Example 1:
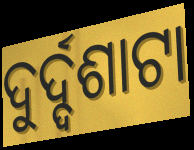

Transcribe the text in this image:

ଦୁର୍ଦ୍ଦଶାଟା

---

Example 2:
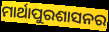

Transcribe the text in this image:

ମାର୍ଥାପୁରଶାସନର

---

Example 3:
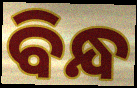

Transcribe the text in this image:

ବିନ୍ଧ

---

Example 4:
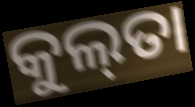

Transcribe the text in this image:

କୁଲ୍‌ତା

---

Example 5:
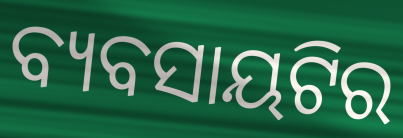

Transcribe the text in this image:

ବ୍ୟବସାୟଟିର